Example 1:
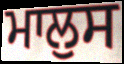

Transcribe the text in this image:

ਮਾਲੁਸ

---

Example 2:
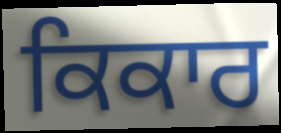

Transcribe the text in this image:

ਕਿਕਾਰ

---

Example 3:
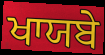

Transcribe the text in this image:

ਖਾਯਬੇ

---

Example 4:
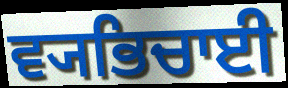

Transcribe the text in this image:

ਵ੍ਯਭਿਚਾਈ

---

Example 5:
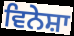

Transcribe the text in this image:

ਵਿਨੇਸ਼ਾ